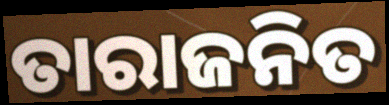
ତାରାଜନିତ